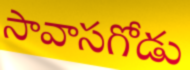
సావాసగోడు